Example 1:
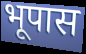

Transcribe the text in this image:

भूपास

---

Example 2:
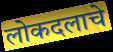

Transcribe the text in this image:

लोकदलाचे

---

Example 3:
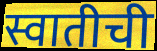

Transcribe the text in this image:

स्वातीची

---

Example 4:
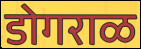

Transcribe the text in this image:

डोगराळ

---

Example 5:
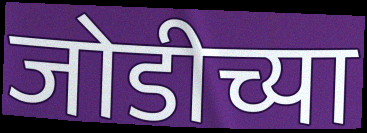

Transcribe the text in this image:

जोडीच्या